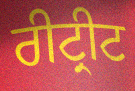
ਰੀਟ੍ਰੀਟ